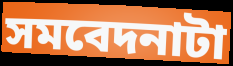
সমবেদনাটা